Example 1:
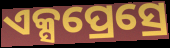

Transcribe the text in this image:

ଏକ୍ସପ୍ରେସ୍ରେ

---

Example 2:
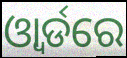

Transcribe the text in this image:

ଓ୍ବାର୍ଡରେ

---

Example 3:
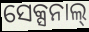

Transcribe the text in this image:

ସେକ୍ସନାଲ୍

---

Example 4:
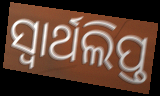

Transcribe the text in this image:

ସ୍ୱାର୍ଥଲିପ୍ତ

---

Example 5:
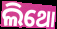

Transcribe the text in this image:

ଲିଥୋ